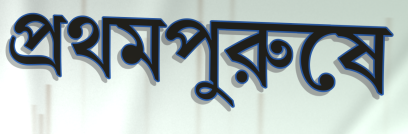
প্রথমপুরুষে